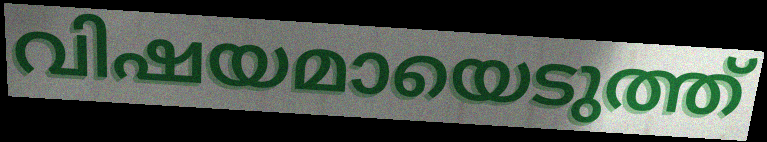
വിഷയമായെടുത്ത്